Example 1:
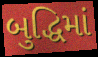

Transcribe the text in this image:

બુદ્ધિમાં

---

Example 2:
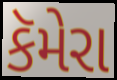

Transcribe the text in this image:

કૅમેરા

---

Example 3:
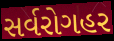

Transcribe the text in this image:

સર્વરોગહર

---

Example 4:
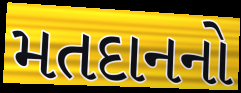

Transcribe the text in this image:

મતદાનનો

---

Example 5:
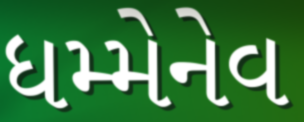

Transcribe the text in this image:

ધમ્મેનેવ